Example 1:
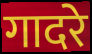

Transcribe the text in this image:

गादरे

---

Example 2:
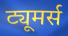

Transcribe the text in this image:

ट्यूमर्स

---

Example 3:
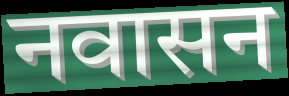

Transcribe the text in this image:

नवासन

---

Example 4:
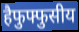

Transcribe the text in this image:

हैफुफ्फुसीय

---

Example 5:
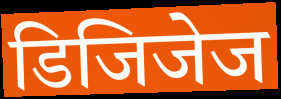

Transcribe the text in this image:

डिजिजेज